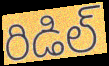
రిడిల్